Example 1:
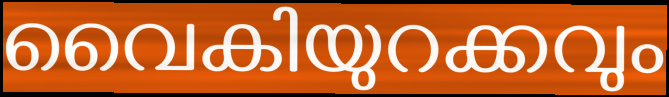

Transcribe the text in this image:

വൈകിയുറക്കവും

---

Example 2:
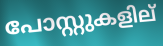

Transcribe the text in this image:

പോസ്റ്റുകളില്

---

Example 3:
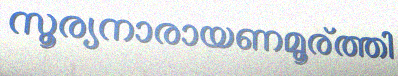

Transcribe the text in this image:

സൂര്യനാരായണമൂര്ത്തി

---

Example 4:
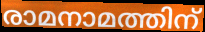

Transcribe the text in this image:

രാമനാമത്തിന്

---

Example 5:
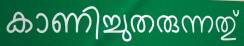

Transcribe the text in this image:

കാണിച്ചുതരുന്നതു്